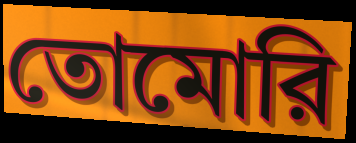
তোমোরি